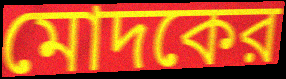
মোদকের